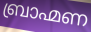
ബ്രാഹ്മണ